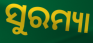
ସୁରମ୍ୟା